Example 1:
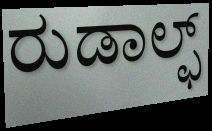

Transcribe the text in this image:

ರುಡಾಲ್ಫ್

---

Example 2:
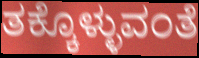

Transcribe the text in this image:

ತಕ್ಕೊಳ್ಳುವಂತೆ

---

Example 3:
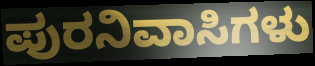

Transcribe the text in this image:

ಪುರನಿವಾಸಿಗಳು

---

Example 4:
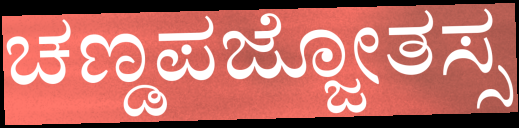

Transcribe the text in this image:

ಚಣ್ಡಪಜ್ಜೋತಸ್ಸ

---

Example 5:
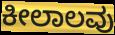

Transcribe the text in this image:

ಕೀಲಾಲವು